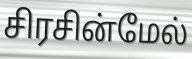
சிரசின்மேல்